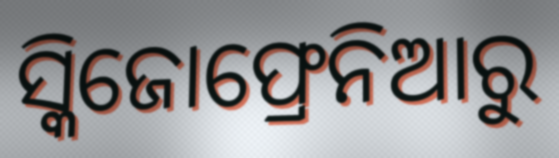
ସ୍କିଜୋଫ୍ରେନିଆରୁ